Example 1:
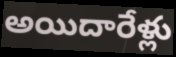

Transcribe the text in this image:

అయిదారేళ్లు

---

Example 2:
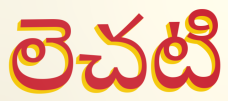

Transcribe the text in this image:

లెచటి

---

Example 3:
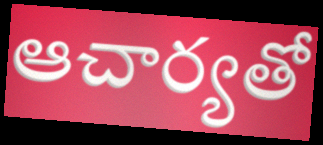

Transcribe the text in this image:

ఆచార్యతో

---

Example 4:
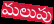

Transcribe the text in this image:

మలుపు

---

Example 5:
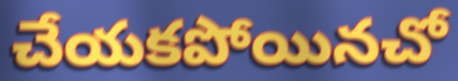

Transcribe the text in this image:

చేయకపోయినచో